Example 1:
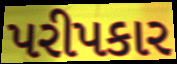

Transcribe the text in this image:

પરીપકાર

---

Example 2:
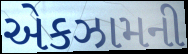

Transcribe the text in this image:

એકઝામની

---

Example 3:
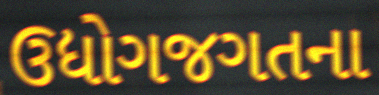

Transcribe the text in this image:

ઉદ્યોગજગતના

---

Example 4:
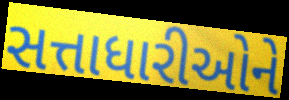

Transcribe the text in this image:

સત્તાધારીઓને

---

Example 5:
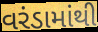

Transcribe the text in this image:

વરંડામાંથી